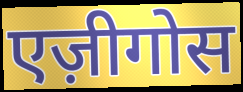
एज़ीगोस